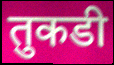
तुकडी